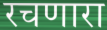
रचणारा